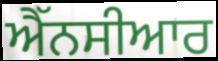
ਐੱਨਸੀਆਰ